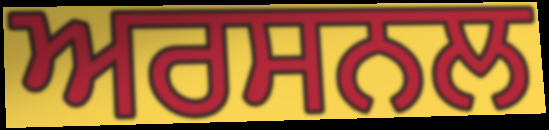
ਅਰਸਨਲ